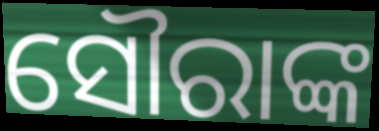
ସୌରାଙ୍କ